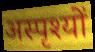
अस्पृश्यों